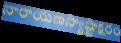
నారాయణస్యాష్టాక్షరం